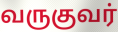
வருகுவர்